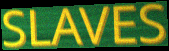
SLAVES